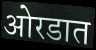
ओरडात